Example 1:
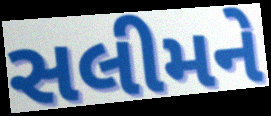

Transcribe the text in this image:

સલીમને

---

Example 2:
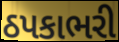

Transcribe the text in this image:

ઠપકાભરી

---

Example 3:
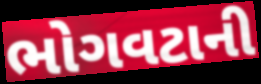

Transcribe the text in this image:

ભોગવટાની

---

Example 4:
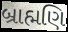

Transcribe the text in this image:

બ્રાહ્મણિ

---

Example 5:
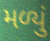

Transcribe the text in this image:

મળ્યું